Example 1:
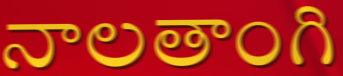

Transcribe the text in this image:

నాలతాంగి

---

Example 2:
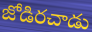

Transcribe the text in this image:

జోడిరచాడు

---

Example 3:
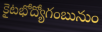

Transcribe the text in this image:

కైటభోద్యోగంబునుం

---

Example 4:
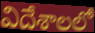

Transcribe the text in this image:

విదేశాలలో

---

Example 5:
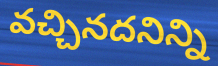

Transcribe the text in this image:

వచ్చినదనిన్ని